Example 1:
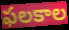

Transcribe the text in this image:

ఫలకాల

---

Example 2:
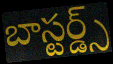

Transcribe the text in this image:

బాస్టర్డ్స్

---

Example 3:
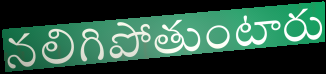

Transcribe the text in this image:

నలిగిపోతుంటారు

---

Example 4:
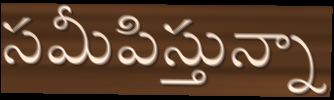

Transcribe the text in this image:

సమీపిస్తున్నా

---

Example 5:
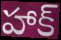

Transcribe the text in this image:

హాక్